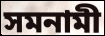
সমনামী